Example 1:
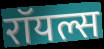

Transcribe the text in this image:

रॉयल्‍स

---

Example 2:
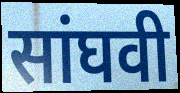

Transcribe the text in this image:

सांघवी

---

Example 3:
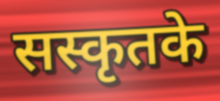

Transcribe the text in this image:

सस्कृतके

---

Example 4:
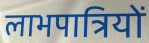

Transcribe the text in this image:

लाभपात्रियों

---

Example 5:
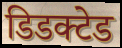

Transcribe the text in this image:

डिडक्टेड